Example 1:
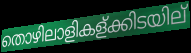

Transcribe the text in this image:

തൊഴിലാളികള്ക്കിടയില്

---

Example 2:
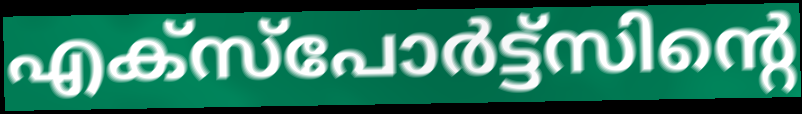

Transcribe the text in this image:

എക്സ്പോർട്ട്സിന്റെ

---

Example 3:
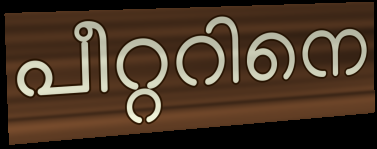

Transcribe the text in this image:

പീറ്ററിനെ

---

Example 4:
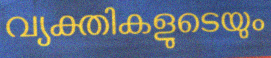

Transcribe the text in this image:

വ്യക്തികളുടെയും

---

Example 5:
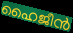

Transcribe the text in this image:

ഹൈജീൻ